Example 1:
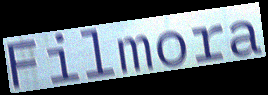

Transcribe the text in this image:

Filmora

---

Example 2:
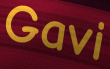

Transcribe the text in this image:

Gavi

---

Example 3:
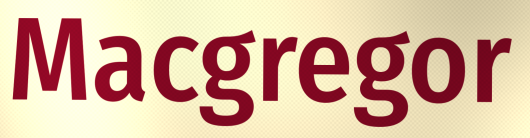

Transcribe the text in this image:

Macgregor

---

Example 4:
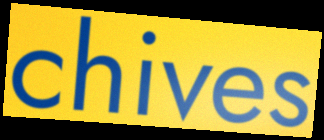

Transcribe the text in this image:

chives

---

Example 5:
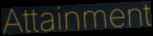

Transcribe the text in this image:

Attainment